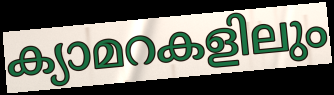
ക്യാമറകളിലും